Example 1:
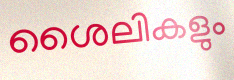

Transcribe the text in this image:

ശൈലികളും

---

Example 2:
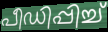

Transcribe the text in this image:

പീഡിപ്പിച്ച്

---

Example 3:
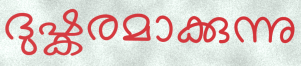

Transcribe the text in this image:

ദുഷ്കരമാക്കുന്നു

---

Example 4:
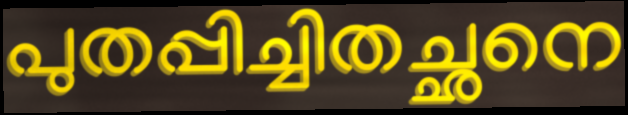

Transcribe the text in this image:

പുതപ്പിച്ചിതച്ഛനെ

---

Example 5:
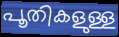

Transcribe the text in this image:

പൂതികളുള്ള